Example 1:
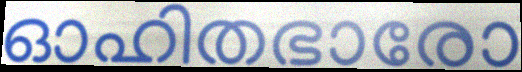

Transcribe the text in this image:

ഓഹിതഭാരോ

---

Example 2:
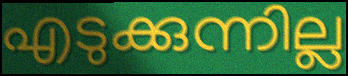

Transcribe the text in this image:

എടുക്കുന്നില്ല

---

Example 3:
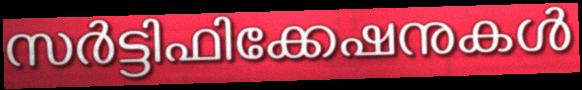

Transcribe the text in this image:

സർട്ടിഫിക്കേഷനുകൾ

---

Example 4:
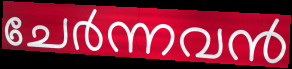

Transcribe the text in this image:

ചേർന്നവൻ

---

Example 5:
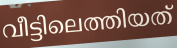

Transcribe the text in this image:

വീട്ടിലെത്തിയത്